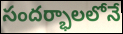
సందర్భాలలోనే